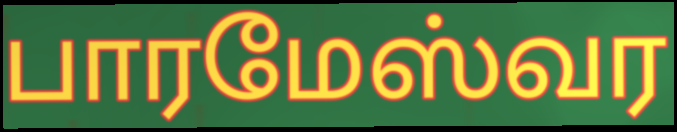
பாரமேஸ்வர